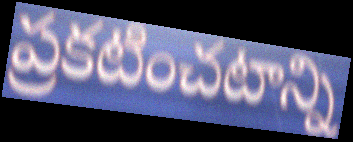
ప్రకటించటాన్ని